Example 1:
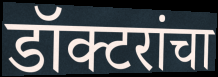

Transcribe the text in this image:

डॉक्टरांचा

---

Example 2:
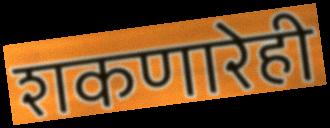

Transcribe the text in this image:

शकणारेही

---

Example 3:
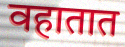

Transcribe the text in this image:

वहातात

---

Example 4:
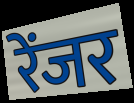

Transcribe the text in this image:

रेंजर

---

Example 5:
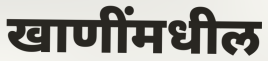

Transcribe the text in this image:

खाणींमधील